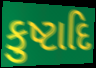
કુષ્ટાદિ